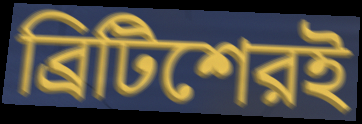
ব্রিটিশেরই